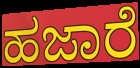
ಹಜಾರೆ